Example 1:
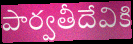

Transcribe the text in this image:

పార్వతీదేవికి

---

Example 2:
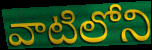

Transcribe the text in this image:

వాటిలోని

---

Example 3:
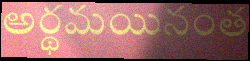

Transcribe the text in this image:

అర్థమయినంత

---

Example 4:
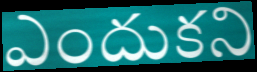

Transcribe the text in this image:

ఎందుకని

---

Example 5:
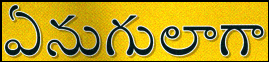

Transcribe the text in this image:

ఏనుగులాగా